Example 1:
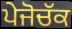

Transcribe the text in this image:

ਪੇਜੋਚੱਕ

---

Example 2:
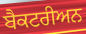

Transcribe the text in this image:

ਬੈਕਟਰੀਅਨ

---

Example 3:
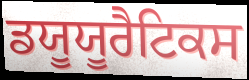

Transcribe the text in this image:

ਡਯੂਯੂਰੈਟਿਕਸ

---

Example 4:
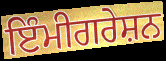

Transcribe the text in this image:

ਇੰਮੀਗਰੇਸ਼ਨ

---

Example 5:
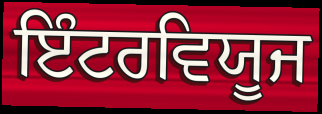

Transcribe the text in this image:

ਇੰਟਰਵਿਯੂਜ